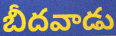
బీదవాడు